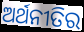
ଅର୍ଥନୀତିର